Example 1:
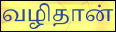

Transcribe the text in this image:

வழிதான்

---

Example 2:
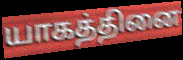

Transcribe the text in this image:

யாகத்தினை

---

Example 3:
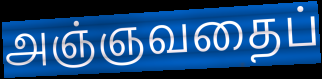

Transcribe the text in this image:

அஞ்ஞவதைப்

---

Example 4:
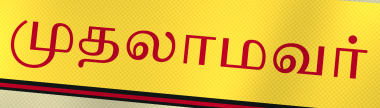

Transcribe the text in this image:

முதலாமவர்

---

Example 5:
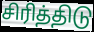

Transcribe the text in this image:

சிரித்திடு